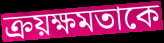
ক্রয়ক্ষমতাকে